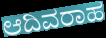
ಆದಿವರಾಹ